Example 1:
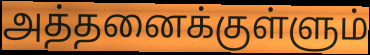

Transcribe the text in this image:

அத்தனைக்குள்ளும்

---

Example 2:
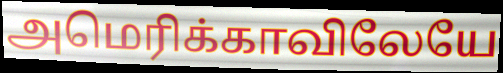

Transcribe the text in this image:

அமெரிக்காவிலேயே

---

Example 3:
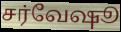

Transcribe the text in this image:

சர்வேஷூ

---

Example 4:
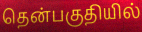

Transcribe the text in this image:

தென்பகுதியில்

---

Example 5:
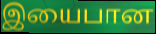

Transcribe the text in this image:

இயைபான